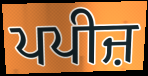
ਪਪੀਜ਼